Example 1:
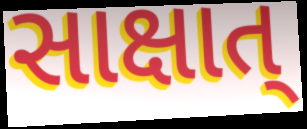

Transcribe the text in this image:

સાક્ષાત્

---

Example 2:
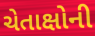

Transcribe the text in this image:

ચેતાક્ષોની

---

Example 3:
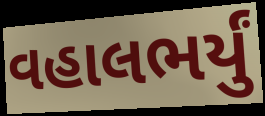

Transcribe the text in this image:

વહાલભર્યું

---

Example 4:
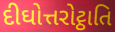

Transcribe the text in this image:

દીઘોત્તરોટ્ઠાતિ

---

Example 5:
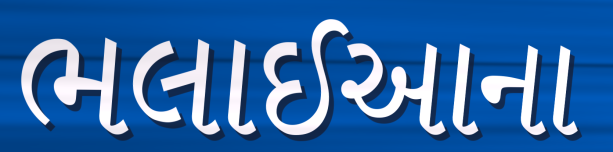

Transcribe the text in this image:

ભલાઈઆના